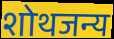
शोथजन्य